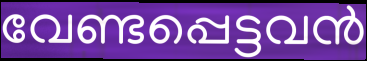
വേണ്ടപ്പെട്ടവൻ